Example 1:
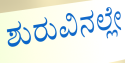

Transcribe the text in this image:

ಶುರುವಿನಲ್ಲೇ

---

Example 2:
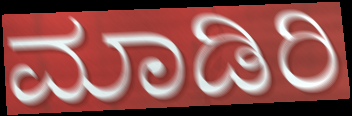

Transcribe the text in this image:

ಮಾಡಿರಿ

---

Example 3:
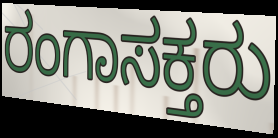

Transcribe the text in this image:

ರಂಗಾಸಕ್ತರು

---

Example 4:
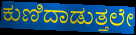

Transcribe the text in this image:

ಕುಣಿದಾಡುತ್ತಲೇ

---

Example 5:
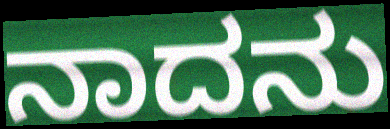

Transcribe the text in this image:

ನಾದನು